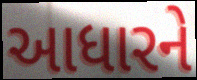
આધારને